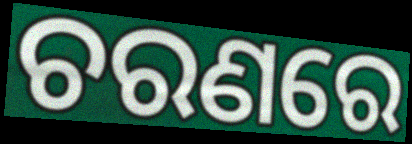
ଚରଣରେ